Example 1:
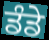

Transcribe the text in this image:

ਡੰਡੇ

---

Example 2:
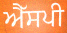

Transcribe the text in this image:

ਐੱਸਪੀ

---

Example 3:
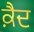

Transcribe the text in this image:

ਕ਼ੈਦ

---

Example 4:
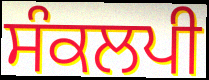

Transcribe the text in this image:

ਸੰਕਲਪੀ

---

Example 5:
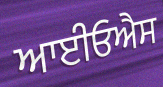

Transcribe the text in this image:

ਆਈਓਐਸ